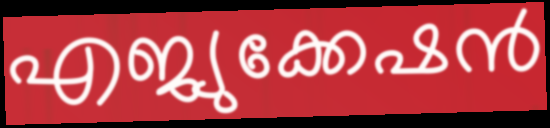
എജ്യുക്കേഷൻ